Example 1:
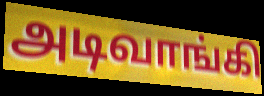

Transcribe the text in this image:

அடிவாங்கி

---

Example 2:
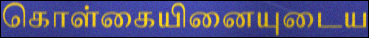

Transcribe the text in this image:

கொள்கையினையுடைய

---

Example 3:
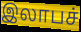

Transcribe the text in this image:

இலாபச்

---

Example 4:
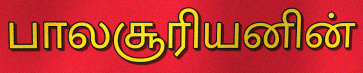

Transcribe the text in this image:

பாலசூரியனின்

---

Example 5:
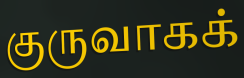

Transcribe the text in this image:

குருவாகக்